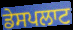
ਡੇਸਪਲਾਟ